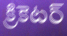
క్రికెటర్